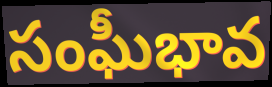
సంఘీభావ